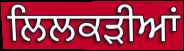
ਲਿਲਕੜੀਆਂ